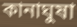
কানাঘুষা